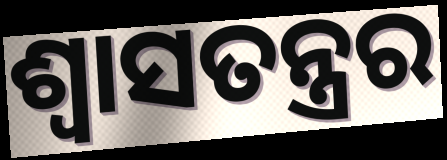
ଶ୍ଵାସତନ୍ତ୍ରର